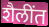
शैलींत